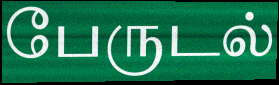
பேருடல்